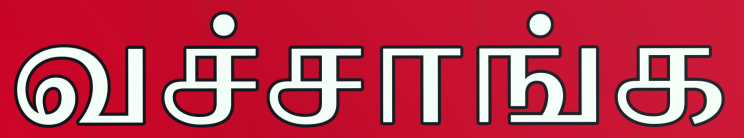
வச்சாங்க